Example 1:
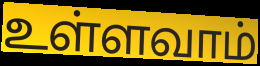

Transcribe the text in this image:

உள்ளவாம்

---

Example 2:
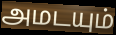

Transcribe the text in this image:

அமடயும்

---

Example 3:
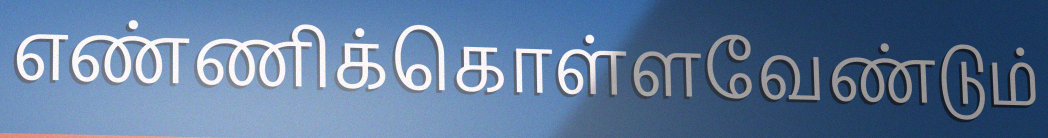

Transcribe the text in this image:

எண்ணிக்கொள்ளவேண்டும்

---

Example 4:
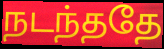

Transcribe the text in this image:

நடந்ததே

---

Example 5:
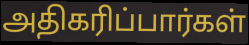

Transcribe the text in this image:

அதிகரிப்பார்கள்